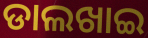
ଡାଲଖାଇ